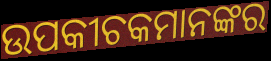
ଉପକୀଚକମାନଙ୍କର